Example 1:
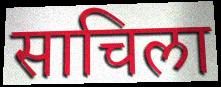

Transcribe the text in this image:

साचिला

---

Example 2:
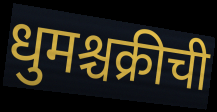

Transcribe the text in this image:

धुमश्चक्रीची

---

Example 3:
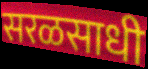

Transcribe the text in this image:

सरळसाधी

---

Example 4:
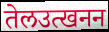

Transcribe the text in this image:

तेलउत्खनन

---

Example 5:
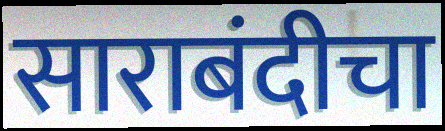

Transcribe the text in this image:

साराबंदीचा